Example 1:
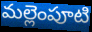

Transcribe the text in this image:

మల్లెంపూటి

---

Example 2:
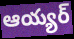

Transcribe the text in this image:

ఆయ్యర్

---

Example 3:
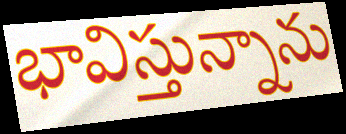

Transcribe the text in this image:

భావిస్తున్నాను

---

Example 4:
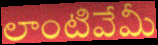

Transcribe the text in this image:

లాంటివేమీ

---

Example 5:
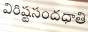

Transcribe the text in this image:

విరిష్టసందధాతి